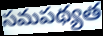
సమపథ్యత